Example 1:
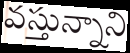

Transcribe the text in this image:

వస్తున్నాని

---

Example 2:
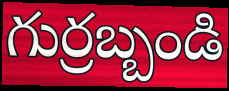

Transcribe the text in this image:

గుర్రబ్బండి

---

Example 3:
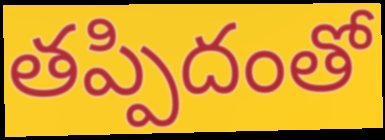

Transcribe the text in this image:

తప్పిదంతో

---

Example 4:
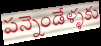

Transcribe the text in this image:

పన్నెండేళ్ళకు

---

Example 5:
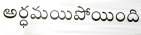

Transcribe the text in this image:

అర్ధమయిపోయింది